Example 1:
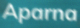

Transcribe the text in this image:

Aparna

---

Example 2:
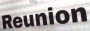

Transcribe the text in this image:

Reunion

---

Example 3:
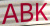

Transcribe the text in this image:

ABK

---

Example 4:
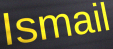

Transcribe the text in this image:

Ismail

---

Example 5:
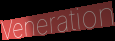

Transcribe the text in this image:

Veneration